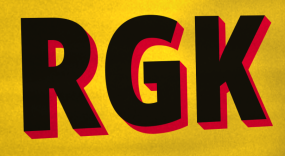
RGK